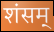
शंसम्